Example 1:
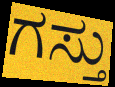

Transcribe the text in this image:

ಗಸ್ತು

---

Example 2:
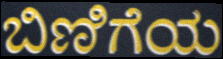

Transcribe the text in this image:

ಬಿಣಿಗೆಯ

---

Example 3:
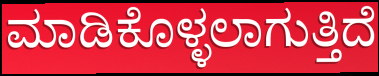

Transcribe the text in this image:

ಮಾಡಿಕೊಳ್ಳಲಾಗುತ್ತಿದೆ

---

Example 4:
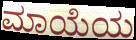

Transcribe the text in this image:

ಮಾಯೆಯ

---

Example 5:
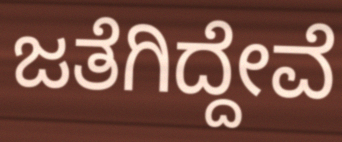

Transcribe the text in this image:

ಜತೆಗಿದ್ದೇವೆ